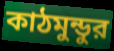
কাঠমুন্ডুর